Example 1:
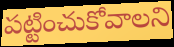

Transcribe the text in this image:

పట్టించుకోవాలని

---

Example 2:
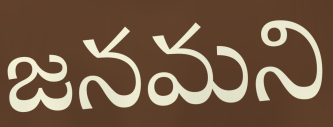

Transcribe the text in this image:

జనమని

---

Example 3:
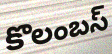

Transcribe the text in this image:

కొలంబస్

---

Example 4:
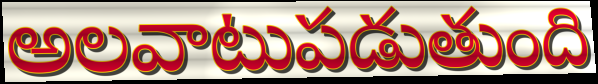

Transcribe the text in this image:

అలవాటుపడుతుంది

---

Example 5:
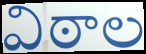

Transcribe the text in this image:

విఠాల